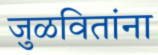
जुळवितांना